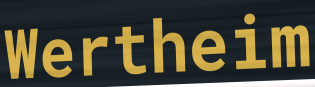
Wertheim